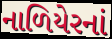
નાળિયેરનાં